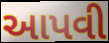
આપવી